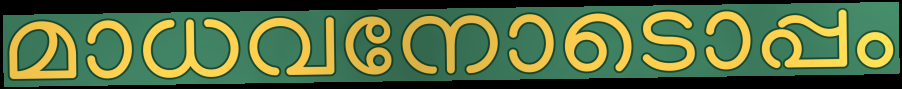
മാധവനോടൊപ്പം